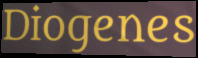
Diogenes